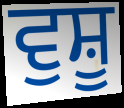
ਵੁਸ਼ੂ